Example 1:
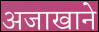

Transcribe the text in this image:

अजाखाने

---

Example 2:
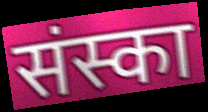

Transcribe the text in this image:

संस्का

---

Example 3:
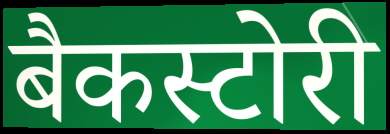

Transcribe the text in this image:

बैकस्टोरी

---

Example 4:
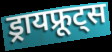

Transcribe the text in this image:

ड्रायफ्रूट्स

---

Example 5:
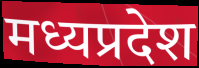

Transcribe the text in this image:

मध्‍यप्रदेश